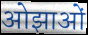
ओझाओं